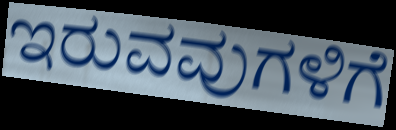
ಇರುವವುಗಳಿಗೆ